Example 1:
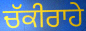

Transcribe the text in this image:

ਚੱਕੀਰਾਹੇ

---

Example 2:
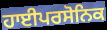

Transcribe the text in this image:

ਹਾਈਪਰਸੋਨਿਕ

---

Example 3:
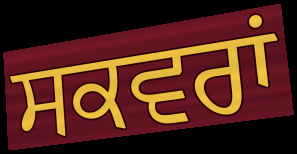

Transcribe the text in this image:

ਸਕਵਰਾਂ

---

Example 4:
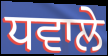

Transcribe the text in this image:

ਧਵਾਲੇ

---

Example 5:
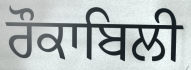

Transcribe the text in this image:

ਰੌਕਾਬਿਲੀ